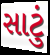
સાટું